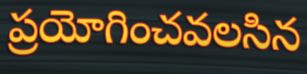
ప్రయోగించవలసిన